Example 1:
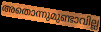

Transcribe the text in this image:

അതൊന്നുമുണ്ടാവില്ല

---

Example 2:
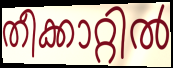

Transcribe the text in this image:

തീക്കാറ്റിൽ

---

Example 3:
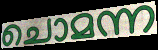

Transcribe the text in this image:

ചൊമന്ന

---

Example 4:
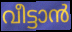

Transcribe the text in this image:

വീട്ടാൻ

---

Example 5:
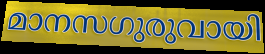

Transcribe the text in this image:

മാനസഗുരുവായി